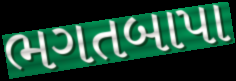
ભગતબાપા